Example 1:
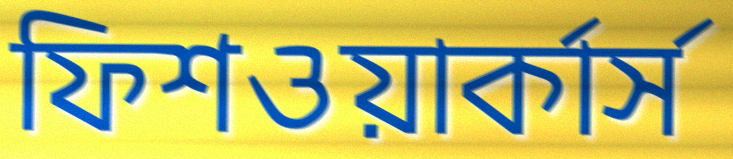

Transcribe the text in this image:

ফিশওয়ার্কার্স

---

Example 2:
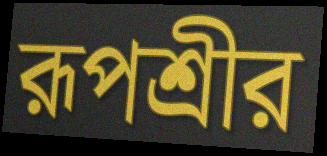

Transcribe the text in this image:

রূপশ্রীর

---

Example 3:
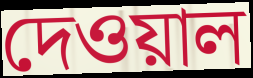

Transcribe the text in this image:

দেওয়াল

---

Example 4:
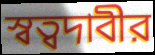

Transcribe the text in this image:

স্বত্বদাবীর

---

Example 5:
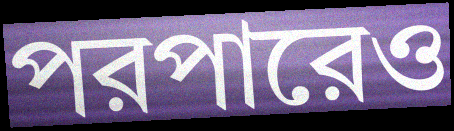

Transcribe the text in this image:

পরপারেও